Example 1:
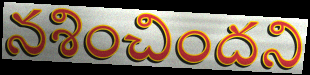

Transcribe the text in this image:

నశించిందని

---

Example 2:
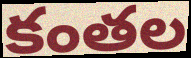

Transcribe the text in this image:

కంతల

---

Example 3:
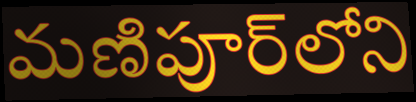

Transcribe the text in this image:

మణిపూర్‌లోని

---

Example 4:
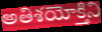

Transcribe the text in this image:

అతిశయోక్తిని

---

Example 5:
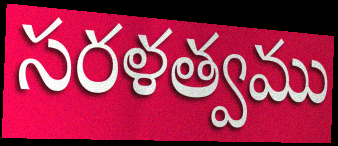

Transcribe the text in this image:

సరళత్వము